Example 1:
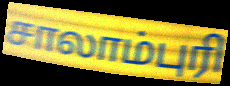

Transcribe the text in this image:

சாலாம்புரி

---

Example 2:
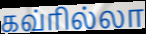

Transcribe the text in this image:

கவ்ரில்லா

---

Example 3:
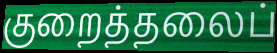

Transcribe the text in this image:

குறைத்தலைப்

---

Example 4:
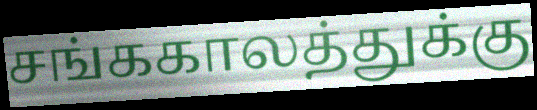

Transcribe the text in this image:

சங்ககாலத்துக்கு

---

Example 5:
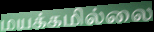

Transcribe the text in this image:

மயக்கமில்லை